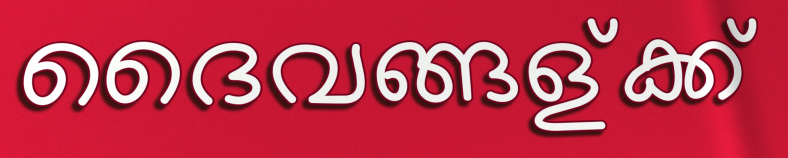
ദൈവങ്ങള്ക്ക്